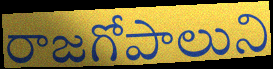
రాజగోపాలుని